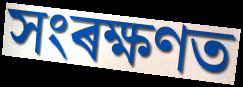
সংৰক্ষণত